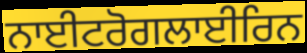
ਨਾਈਟਰੋਗਲਾਈਰਿਨ